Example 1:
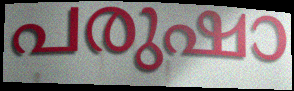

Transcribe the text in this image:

പരുഷാ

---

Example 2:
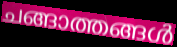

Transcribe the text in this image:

ചങ്ങാത്തങ്ങൾ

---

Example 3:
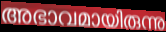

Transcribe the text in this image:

അഭാവമായിരുന്നു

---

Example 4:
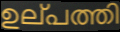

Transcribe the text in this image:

ഉല്‌പത്തി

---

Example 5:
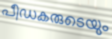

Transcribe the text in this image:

പീഡകരുടെയും